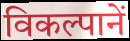
विकल्पानें